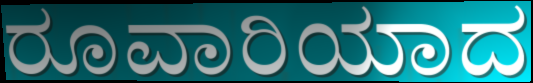
ರೂವಾರಿಯಾದ